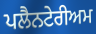
ਪਲੈਨਟੇਰੀਅਮ